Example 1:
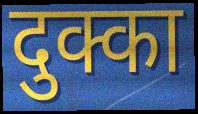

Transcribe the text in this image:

दुक्का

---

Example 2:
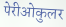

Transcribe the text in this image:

पेरीओकुलर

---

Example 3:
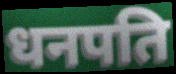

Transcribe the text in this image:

धनपति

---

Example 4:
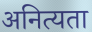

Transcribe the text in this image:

अनित्यता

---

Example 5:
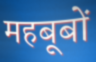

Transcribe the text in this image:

महबूबों